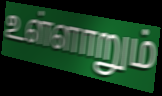
உள்ளாறும்